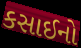
કસાઈનો